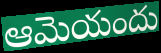
ఆమెయందు